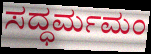
ಸದ್ಧರ್ಮಮಂ